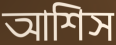
আশিস